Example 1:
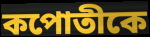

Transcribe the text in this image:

কপোতীকে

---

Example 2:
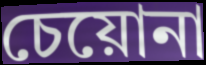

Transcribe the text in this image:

চেয়োনা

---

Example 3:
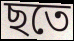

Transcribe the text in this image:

ছতে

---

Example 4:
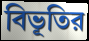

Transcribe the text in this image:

বিভূতির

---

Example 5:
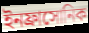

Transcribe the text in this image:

ইনফ্রাসোনিক